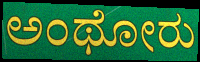
ಅಂಥೋರು